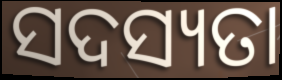
ସଦସ୍ଯତା